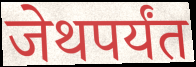
जेथपर्यंत